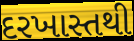
દરખાસ્તથી